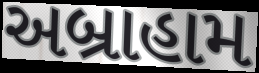
અબ્રાહામ